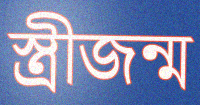
স্ত্রীজন্ম